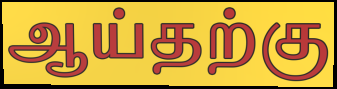
ஆய்தற்கு